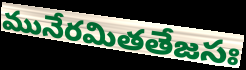
మునేరమితతేజసః